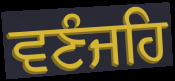
ਵਣੰਜਹਿ